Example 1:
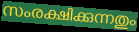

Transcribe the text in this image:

സംരക്ഷിക്കുന്നതും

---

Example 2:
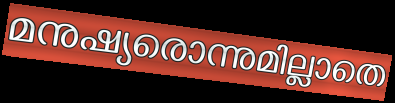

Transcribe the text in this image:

മനുഷ്യരൊന്നുമില്ലാതെ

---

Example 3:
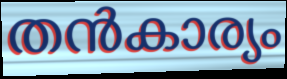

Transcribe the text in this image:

തൻകാര്യം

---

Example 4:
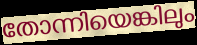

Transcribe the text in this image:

തോന്നിയെങ്കിലും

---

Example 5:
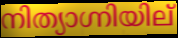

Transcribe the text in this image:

നിത്യാഗ്നിയില്